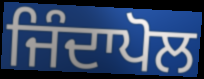
ਜਿੰਦਾਪੋਲ